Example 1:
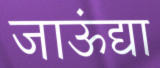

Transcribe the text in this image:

जाऊंद्या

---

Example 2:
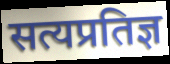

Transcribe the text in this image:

सत्यप्रतिज्ञ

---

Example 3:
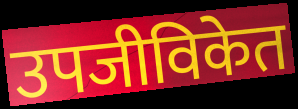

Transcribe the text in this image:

उपजीविकेत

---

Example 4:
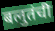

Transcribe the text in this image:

बलुतंची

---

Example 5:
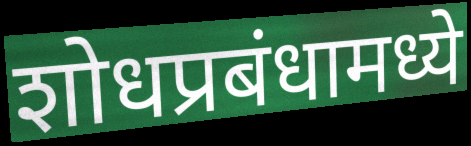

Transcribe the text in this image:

शोधप्रबंधामध्ये